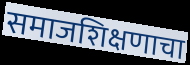
समाजशिक्षणाचा